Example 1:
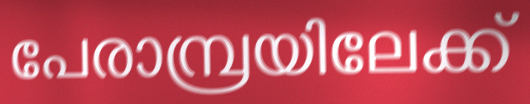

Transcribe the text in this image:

പേരാമ്പ്രയിലേക്ക്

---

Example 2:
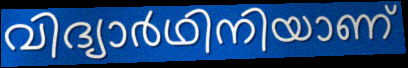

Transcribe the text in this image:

വിദ്യാർഥിനിയാണ്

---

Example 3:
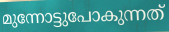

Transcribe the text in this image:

മുന്നോട്ടുപോകുന്നത്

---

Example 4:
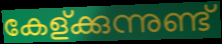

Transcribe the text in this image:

കേള്ക്കുന്നുണ്ട്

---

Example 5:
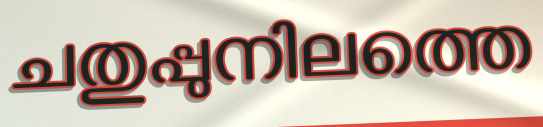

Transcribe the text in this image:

ചതുപ്പുനിലത്തെ